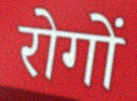
रोगों